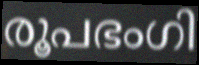
രൂപഭംഗി